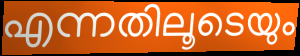
എന്നതിലൂടെയും